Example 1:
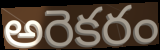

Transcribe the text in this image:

అరెకరం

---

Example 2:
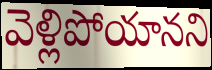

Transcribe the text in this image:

వెళ్లిపోయానని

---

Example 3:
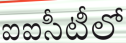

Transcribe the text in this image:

ఐఐసీటీలో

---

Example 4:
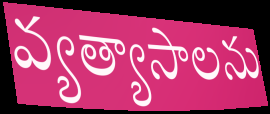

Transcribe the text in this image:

వ్యత్యాసాలను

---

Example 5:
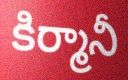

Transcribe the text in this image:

కిర్మానీ